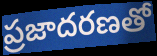
ప్రజాదరణతో